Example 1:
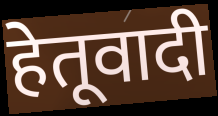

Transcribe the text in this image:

हेतूवादी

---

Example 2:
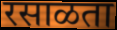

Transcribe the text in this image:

रसाळता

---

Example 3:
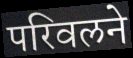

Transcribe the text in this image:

परिवलने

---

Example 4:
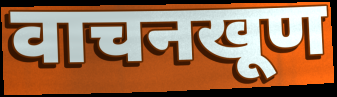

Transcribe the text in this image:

वाचनखूण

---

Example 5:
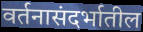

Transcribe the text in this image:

वर्तनासंदर्भातील